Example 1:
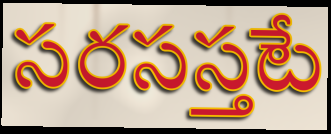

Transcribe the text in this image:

సరసస్తటే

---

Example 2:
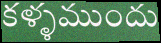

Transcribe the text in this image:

కళ్ళముందు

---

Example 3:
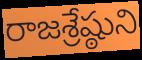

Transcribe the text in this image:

రాజశ్రేష్ఠుని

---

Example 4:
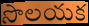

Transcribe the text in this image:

సొలయక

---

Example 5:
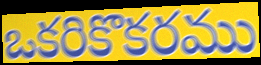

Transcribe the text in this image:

ఒకరికొకరము